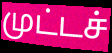
முட்டச்